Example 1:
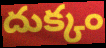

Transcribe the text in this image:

దుక్కం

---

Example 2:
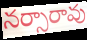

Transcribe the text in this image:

నర్సారావు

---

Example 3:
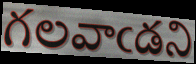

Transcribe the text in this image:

గలవాఁడని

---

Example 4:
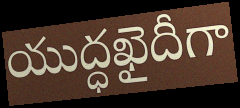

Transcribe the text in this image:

యుద్ధఖైదీగా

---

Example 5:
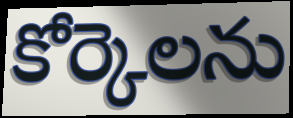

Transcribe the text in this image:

కోర్కెలను